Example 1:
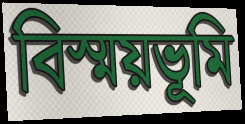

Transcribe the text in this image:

বিস্ময়ভূমি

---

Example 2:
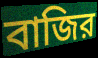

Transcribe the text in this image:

বাজির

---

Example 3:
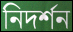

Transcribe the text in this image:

নিদর্শন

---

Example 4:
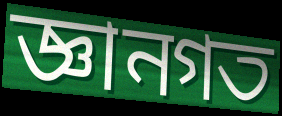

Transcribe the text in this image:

জ্ঞানগত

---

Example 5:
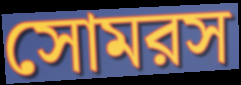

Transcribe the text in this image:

সোমরস